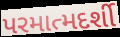
પરમાત્મદર્શી